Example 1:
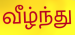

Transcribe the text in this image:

வீழ்ந்து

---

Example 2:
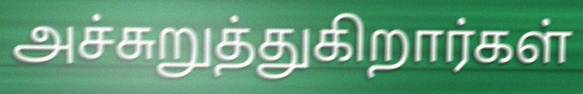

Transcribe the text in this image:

அச்சுறுத்துகிறார்கள்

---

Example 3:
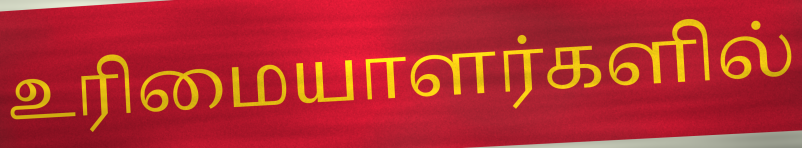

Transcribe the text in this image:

உரிமையாளர்களில்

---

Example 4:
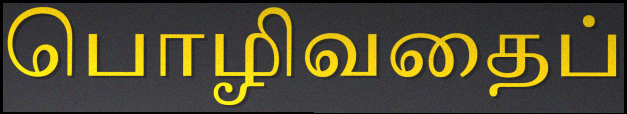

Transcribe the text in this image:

பொழிவதைப்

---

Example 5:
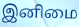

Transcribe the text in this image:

இனிமை